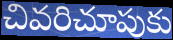
చివరిచూపుకు